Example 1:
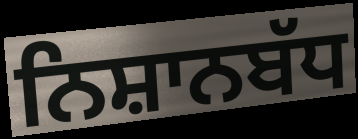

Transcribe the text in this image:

ਨਿਸ਼ਾਨਬੱਧ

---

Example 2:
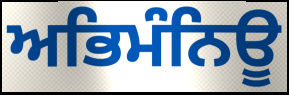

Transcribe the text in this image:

ਅਭਿਮੰਨਿਊ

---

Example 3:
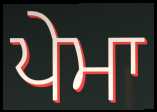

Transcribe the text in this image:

ਪੇਮਾ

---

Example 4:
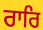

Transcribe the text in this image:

ਰਾਰਿ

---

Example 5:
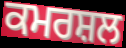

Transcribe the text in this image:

ਕਮਰਸ਼ਲ